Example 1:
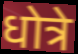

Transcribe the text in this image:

धोत्रे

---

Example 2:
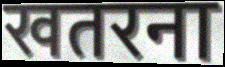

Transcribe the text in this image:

खतरना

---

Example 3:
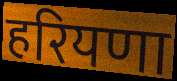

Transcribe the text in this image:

हरियणा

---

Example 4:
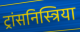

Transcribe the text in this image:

ट्रांसनिस्त्रिया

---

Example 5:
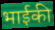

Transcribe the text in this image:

भाईकी